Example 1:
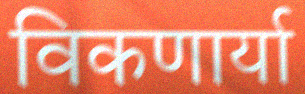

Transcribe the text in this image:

विकणार्या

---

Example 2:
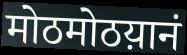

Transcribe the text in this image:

मोठमोठय़ानं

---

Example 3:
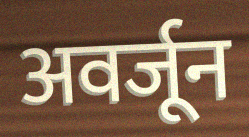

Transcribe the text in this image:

अवर्जून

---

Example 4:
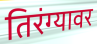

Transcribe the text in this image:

तिरंग्यावर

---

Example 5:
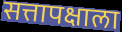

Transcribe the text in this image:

सत्तापक्षाला